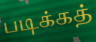
படிக்கத்